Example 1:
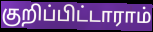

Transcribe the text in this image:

குறிப்பிட்டாராம்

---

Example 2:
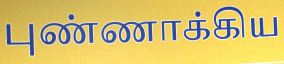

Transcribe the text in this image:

புண்ணாக்கிய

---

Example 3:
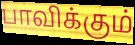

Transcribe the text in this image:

பாவிக்கும்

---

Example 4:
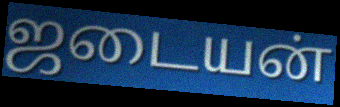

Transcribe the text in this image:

ஜடையன்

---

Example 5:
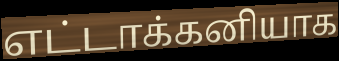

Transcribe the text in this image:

எட்டாக்கனியாக